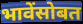
भावेंसोबत